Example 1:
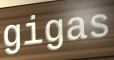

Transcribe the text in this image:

gigas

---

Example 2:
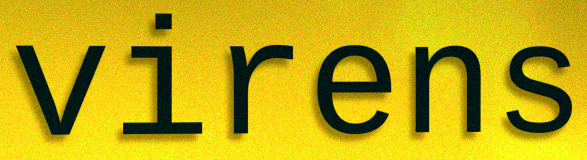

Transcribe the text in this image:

virens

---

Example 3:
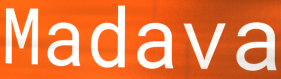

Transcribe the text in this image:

Madava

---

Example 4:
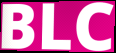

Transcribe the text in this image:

BLC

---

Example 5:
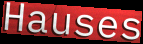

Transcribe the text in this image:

Hauses